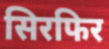
सिरफिर